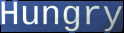
Hungry